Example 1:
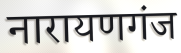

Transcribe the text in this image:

नारायणगंज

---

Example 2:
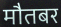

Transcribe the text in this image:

मौतबर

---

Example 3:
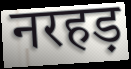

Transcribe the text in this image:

नरहड़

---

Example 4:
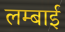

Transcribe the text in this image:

लम्बाई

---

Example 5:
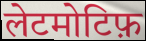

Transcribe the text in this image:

लेटमोटिफ़